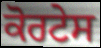
ਕੋਰਟੇਸ